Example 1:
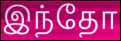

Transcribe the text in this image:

இந்தோ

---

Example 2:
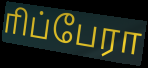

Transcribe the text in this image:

ரிப்பேரா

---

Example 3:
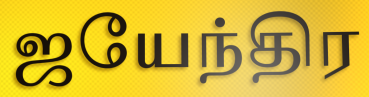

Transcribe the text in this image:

ஜயேந்திர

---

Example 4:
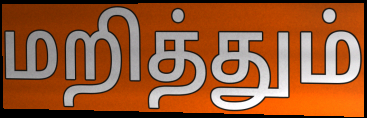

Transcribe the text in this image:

மறித்தும்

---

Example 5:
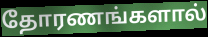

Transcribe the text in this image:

தோரணங்களால்